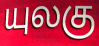
யுலகு